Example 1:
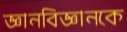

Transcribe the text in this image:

জ্ঞানবিজ্ঞানকে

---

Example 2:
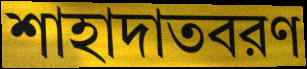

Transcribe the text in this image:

শাহাদাতবরণ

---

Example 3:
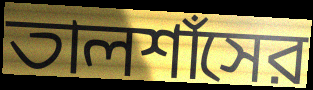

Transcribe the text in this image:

তালশাঁসের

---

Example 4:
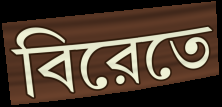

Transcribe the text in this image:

বিরেতে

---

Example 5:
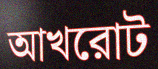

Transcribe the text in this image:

আখরোট